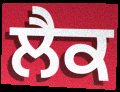
ਲੈਕ